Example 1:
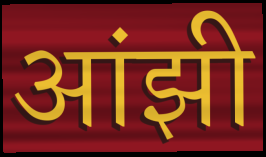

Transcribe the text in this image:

आंझी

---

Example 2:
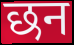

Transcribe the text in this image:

छन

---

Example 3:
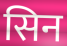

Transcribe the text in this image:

सिन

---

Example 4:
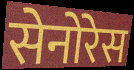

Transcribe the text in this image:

सेनोरेस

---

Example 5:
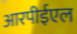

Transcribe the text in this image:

आरपीईएल